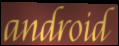
android